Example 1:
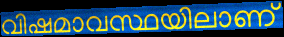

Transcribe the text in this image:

വിഷമാവസ്ഥയിലാണ്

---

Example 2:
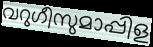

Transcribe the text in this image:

വറുഗീസുമാപ്പിള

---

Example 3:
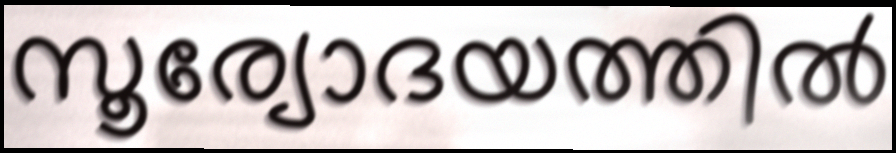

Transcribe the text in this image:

സൂര്യോദയത്തിൽ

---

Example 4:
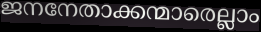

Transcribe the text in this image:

ജനനേതാക്കന്മാരെല്ലാം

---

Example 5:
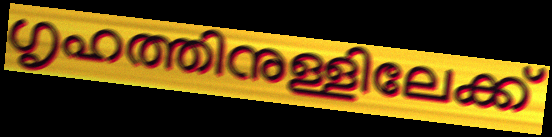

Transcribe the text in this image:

ഗൃഹത്തിനുള്ളിലേക്ക്